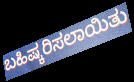
ಬಹಿಷ್ಕರಿಸಲಾಯಿತು